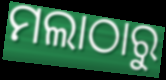
ମଲାଠାରୁ